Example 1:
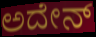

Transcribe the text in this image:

ಅದೇನ್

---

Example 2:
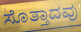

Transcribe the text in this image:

ಸೊತ್ತಾದವು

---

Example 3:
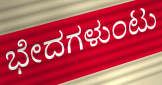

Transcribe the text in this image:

ಭೇದಗಳುಂಟು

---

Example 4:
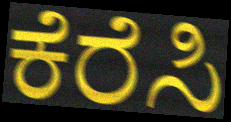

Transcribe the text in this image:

ಕೆರೆಸಿ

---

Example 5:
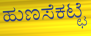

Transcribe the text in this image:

ಹುಣಸೆಕಟ್ಟೆ